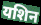
यशिन